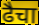
ढैचा